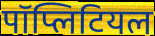
पॉप्लिटियल